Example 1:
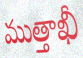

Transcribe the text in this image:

ముత్తాఖీ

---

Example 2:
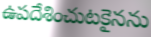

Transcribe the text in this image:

ఉపదేశించుటకైనను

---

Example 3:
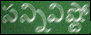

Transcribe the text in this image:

సన్నివిష్టో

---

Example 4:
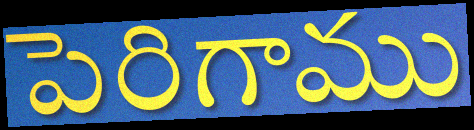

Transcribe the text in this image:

పెరిగాము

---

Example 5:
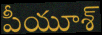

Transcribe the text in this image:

పీయూశ్